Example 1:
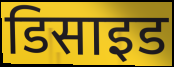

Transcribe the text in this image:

डिसाइड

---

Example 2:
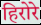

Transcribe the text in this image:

हिरोरे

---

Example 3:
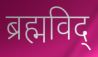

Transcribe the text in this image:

ब्रह्मविद्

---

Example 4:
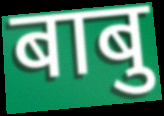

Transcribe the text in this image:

बाबु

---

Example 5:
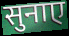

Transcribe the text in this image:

सुनाए